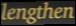
lengthen